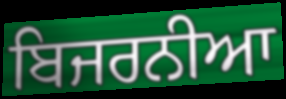
ਬਿਜਰਨੀਆ